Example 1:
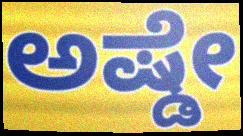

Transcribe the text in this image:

ಅಷ್ಡೇ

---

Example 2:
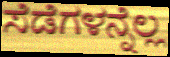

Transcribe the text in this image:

ಸೆಡೆಗಳನ್ನೆಲ್ಲ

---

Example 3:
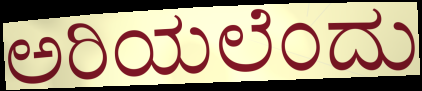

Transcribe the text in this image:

ಅರಿಯಲೆಂದು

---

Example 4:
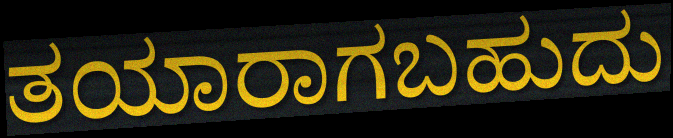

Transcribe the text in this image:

ತಯಾರಾಗಬಹುದು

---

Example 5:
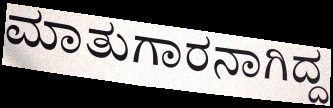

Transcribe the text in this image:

ಮಾತುಗಾರನಾಗಿದ್ದ